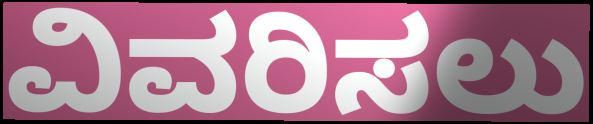
ವಿವರಿಸಲು